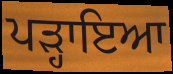
ਪੜ੍ਹਾਇਆ